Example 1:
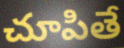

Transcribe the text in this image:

చూపితే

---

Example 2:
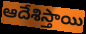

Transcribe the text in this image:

ఆదేశిస్తాయి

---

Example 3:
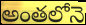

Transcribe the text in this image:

అంతలోనె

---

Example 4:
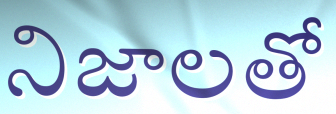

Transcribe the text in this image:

నిజాలతో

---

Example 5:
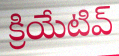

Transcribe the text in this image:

క్రియేటివ్